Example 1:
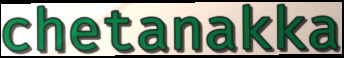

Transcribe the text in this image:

chetanakka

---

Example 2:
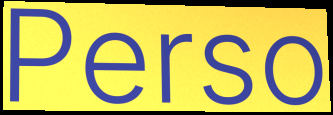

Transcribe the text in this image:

Perso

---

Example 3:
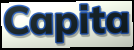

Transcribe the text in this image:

Capita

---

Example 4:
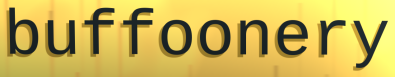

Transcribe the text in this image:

buffoonery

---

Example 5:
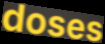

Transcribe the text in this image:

doses